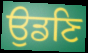
ਉਡਣਿ